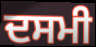
ਦਸਮੀ